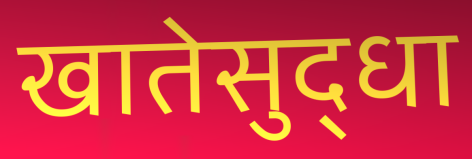
खातेसुद्धा